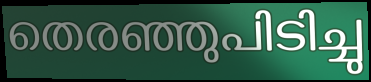
തെരഞ്ഞുപിടിച്ചു